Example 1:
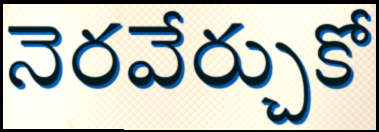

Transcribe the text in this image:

నెరవేర్చుకో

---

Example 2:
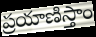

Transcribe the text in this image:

ప్రయాణిస్తాం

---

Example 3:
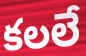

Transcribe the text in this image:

కలలే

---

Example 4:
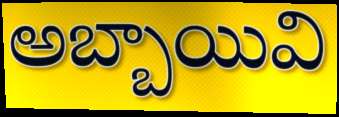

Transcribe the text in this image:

అబ్బాయివి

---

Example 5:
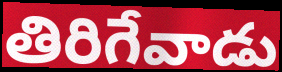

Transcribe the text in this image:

తిరిగేవాడు